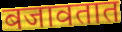
बजावतात